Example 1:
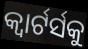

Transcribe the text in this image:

କ୍ୱାର୍ଟର୍ସକୁ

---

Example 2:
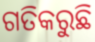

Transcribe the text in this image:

ଗତିକରୁଛି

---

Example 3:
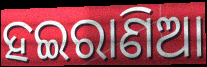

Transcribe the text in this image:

ହଇରାଣିଆ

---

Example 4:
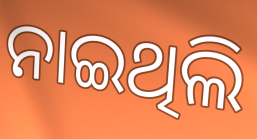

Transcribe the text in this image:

ନାଇଥିଲି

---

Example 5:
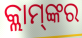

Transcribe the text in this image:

କ୍ଲାମ୍‌ଙ୍କର